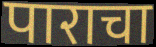
पाराचा